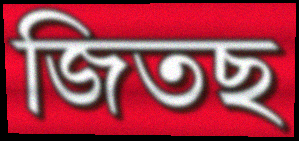
জিতছ